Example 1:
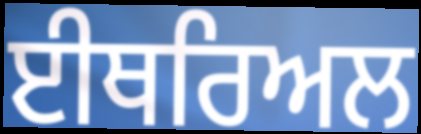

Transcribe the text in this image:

ਈਥਰਿਅਲ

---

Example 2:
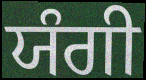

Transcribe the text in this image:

ਯੰਗੀ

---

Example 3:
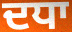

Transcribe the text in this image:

ਦਧਾ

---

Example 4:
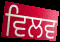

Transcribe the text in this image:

ਵਿਲਵ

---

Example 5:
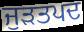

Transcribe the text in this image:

ਜੁੜਤਪਦ